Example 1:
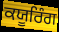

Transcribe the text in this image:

ਕਯੂਰਿੰਗ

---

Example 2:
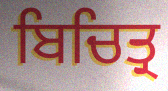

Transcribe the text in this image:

ਬਿਚਿਤ੍ਰ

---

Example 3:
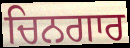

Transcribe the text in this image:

ਚਿਨਗਾਰ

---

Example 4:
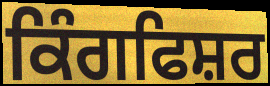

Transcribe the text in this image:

ਕਿੰਗਫਿਸ਼ਰ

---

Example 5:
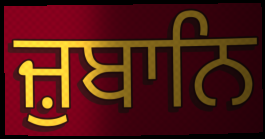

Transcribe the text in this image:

ਜ਼ੁਬਾਨਿ